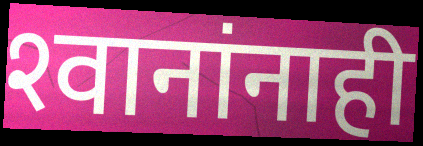
श्वानांनाही